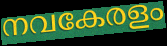
നവകേരളം